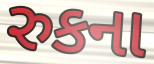
રુકના